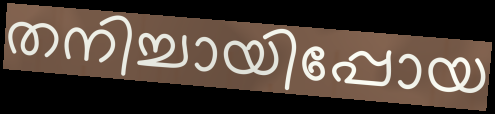
തനിച്ചായിപ്പോയ